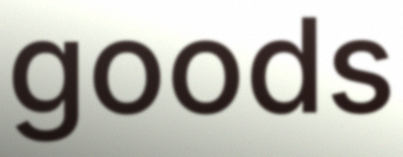
goods